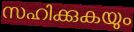
സഹിക്കുകയും